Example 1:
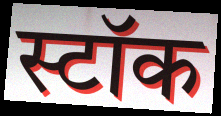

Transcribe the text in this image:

स्‍टॉक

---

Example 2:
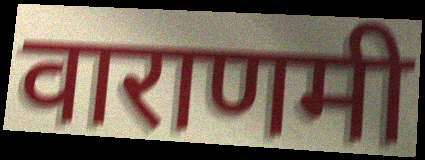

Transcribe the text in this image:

वाराणमी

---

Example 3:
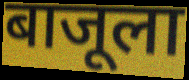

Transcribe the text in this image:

बाजूला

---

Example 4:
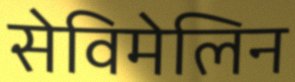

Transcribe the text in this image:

सेविमेलिन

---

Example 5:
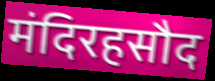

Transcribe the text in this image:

मंदिरहसौद